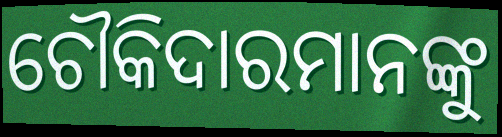
ଚୌକିଦାରମାନଙ୍କୁ